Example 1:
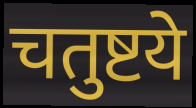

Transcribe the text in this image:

चतुष्टये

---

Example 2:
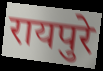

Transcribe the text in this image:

रायपुरे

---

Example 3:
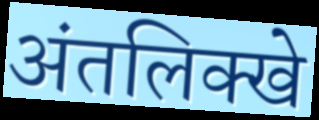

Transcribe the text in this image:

अंतलिक्खे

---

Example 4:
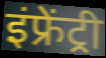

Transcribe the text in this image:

इंफ्रेंट्री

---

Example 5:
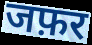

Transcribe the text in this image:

जफ़र